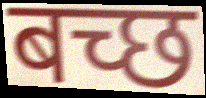
बच्छ